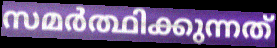
സമർത്ഥിക്കുന്നത്